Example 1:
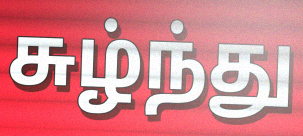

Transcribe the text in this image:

சுழ்ந்து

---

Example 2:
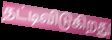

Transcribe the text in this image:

தட்டிவிடுகிறது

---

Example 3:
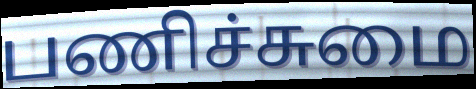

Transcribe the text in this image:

பணிச்சுமை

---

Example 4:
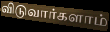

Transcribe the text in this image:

விடுவார்களாம்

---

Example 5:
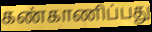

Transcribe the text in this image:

கண்காணிப்பது